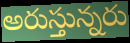
అరుస్తున్నరు